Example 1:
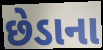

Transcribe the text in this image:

છેડાના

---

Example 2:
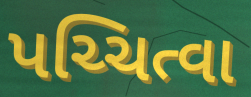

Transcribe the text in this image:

પચ્ચિત્વા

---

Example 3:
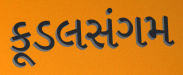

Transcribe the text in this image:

કૂડલસંગમ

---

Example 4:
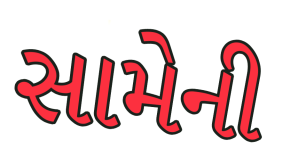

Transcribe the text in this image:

સામેની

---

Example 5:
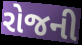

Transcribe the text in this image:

રોજની